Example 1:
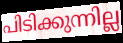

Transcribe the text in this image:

പിടിക്കുന്നില്ല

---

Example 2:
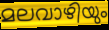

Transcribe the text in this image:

മലവാഴിയും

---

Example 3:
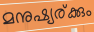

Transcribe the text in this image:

മനുഷ്യര്ക്കും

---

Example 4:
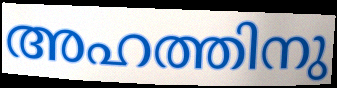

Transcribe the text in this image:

അഹത്തിനു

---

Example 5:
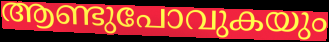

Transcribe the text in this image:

ആണ്ടുപോവുകയും